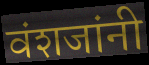
वंशजांनी